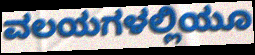
ವಲಯಗಳಲ್ಲಿಯೂ